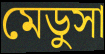
মেডুসা